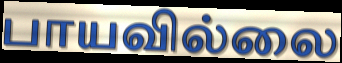
பாயவில்லை